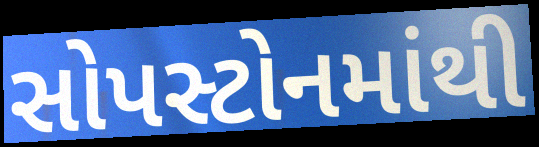
સોપસ્ટોનમાંથી